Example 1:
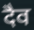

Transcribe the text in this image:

दैव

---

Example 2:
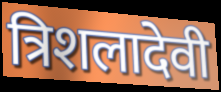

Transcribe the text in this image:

त्रिशलादेवी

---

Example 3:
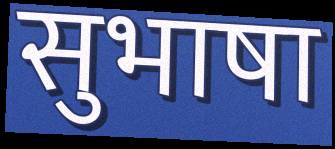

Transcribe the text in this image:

सुभाषा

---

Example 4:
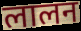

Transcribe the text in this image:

लालन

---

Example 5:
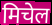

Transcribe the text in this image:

मिचेल